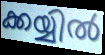
ക്കയ്യിൽ